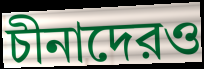
চীনাদেরও